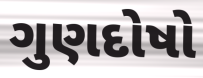
ગુણદોષો